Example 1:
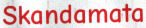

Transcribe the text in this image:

Skandamata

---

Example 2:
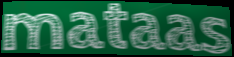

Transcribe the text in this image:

mataas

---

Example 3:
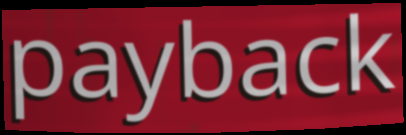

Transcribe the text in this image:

payback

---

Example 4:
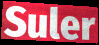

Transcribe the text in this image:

Suler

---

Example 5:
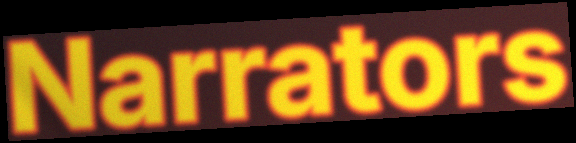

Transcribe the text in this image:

Narrators